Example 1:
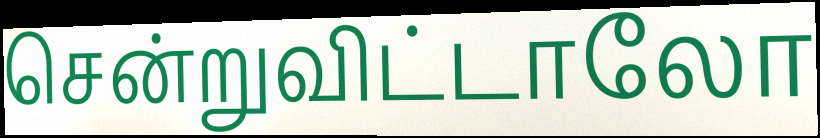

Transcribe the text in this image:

சென்றுவிட்டாலோ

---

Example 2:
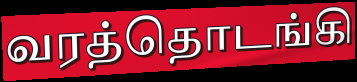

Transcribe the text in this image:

வரத்தொடங்கி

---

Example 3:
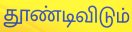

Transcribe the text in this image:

தூண்டிவிடும்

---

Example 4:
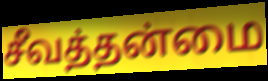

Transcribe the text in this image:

சீவத்தன்மை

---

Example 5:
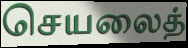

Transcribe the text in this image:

செயலைத்